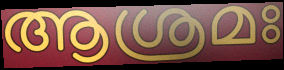
ആശ്രമഃ